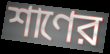
শাণের